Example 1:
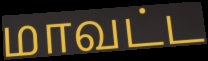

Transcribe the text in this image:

மாவட்ட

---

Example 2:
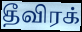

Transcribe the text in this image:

தீவிரக்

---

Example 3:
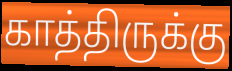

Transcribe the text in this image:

காத்திருக்கு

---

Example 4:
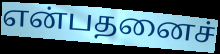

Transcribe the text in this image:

என்பதனைச்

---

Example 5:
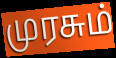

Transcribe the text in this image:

முரசும்